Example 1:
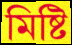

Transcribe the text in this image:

মিষ্টি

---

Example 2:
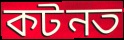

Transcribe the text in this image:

কটনত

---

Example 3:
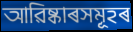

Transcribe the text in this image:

আৱিষ্কাৰসমূহৰ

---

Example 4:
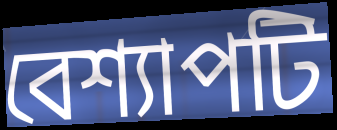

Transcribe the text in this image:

বেশ্যাপটি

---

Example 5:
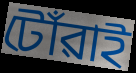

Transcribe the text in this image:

টোঁৱাই